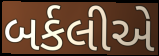
બર્કલીએ